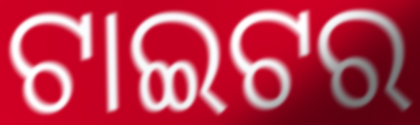
ଟାଇଟର